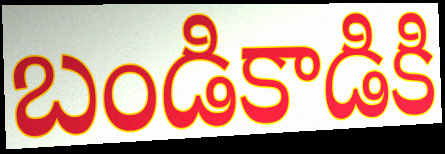
బండికాడికి